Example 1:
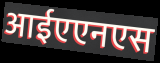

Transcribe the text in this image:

आईएएनएस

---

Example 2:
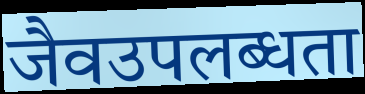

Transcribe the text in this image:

जैवउपलब्धता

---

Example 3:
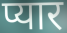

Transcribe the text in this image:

प्यार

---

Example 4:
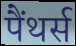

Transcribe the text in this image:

पैंथर्स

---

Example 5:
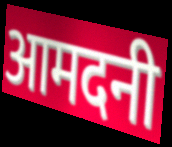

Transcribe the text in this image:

आमदनी